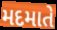
મદમાતે